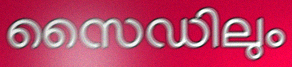
സൈഡിലും